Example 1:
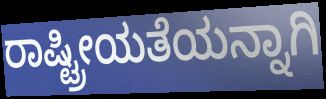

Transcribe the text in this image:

ರಾಷ್ಟ್ರೀಯತೆಯನ್ನಾಗಿ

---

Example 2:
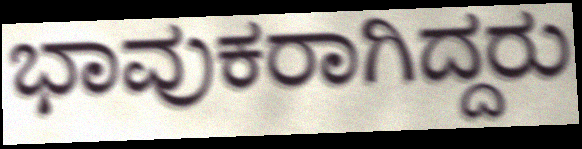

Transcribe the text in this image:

ಭಾವುಕರಾಗಿದ್ದರು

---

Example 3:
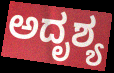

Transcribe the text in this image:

ಅದೃಶ್ಯ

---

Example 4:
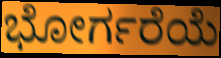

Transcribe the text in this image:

ಭೋರ್ಗರೆಯೆ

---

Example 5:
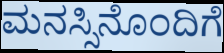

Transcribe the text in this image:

ಮನಸ್ಸಿನೊಂದಿಗೆ